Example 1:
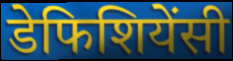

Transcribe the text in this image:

डेफिशियेंसी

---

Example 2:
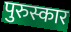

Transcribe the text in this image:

पुरुस्‍कार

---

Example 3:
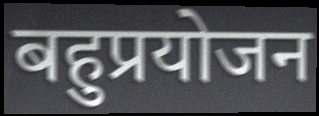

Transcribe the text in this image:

बहुप्रयोजन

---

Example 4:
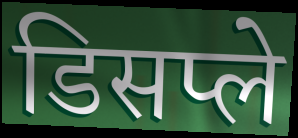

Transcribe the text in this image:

डिसप्ले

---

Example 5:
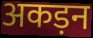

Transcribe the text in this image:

अकड़न